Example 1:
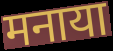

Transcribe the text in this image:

मनाया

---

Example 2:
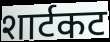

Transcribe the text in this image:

शार्टकट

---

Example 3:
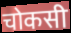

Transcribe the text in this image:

चोकसी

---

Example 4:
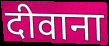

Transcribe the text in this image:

दीवाना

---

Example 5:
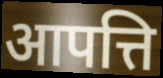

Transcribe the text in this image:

आपत्ति